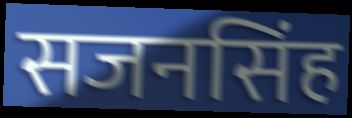
सजनसिंह